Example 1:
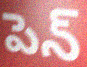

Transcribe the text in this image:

పెన్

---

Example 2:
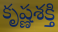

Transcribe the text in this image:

కృష్ణశక్తి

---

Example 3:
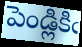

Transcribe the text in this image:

పెండ్లికిఁ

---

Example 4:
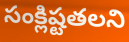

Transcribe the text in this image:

సంక్లిష్టతలని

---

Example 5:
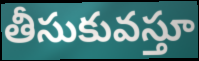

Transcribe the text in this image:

తీసుకువస్తూ